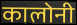
कालोनी